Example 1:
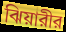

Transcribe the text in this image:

ঝিয়ারীর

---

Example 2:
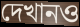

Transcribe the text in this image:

দেখানও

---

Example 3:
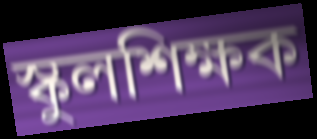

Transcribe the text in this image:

স্কুলশিক্ষক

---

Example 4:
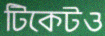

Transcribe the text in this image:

টিকেটও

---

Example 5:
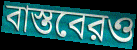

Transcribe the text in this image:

বাস্তবেরও